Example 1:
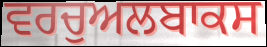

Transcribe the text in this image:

ਵਰਚੁਅਲਬਾਕਸ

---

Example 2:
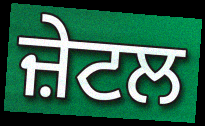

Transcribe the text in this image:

ਜ਼ੇਟਲ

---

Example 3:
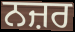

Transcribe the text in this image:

ਨਜ਼ਰ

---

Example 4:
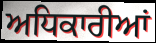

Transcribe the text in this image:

ਅਧਿਕਾਰੀਆਂ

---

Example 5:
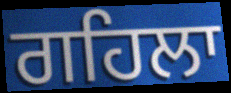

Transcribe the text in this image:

ਗਹਿਲਾ